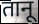
तानू